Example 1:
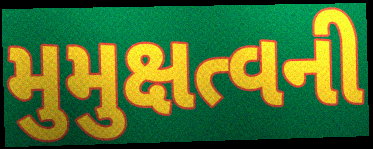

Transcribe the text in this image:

મુમુક્ષત્વની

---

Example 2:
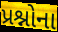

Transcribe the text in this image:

પ્રશ્નોના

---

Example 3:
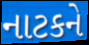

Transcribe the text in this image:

નાટકને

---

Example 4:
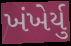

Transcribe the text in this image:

ખંખેર્યુ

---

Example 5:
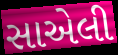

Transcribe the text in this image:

સાએલી